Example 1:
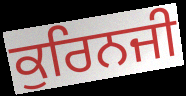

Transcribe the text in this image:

ਕੁਰਿਨਜੀ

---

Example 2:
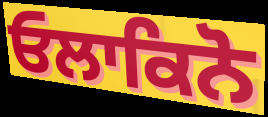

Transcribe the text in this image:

ਓਲਾਕਿਨੋ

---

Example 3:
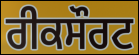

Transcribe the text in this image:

ਰੀਕਸੌਰਟ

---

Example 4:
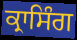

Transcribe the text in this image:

ਕ੍ਰਾਸਿੰਗ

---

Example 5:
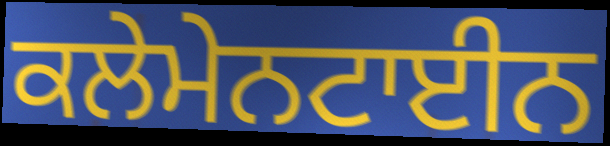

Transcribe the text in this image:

ਕਲੇਮੇਨਟਾਈਨ